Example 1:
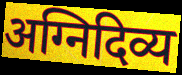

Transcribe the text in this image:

अग्निदिव्य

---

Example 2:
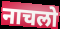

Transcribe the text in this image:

नाचलो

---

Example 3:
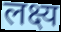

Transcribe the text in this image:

लक्ष्य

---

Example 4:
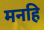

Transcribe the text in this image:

मनहि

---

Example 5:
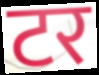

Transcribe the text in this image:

टर